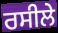
ਰਸੀਲੇ